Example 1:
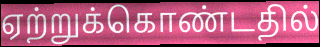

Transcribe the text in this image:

ஏற்றுக்கொண்டதில்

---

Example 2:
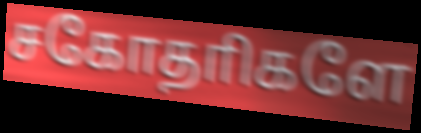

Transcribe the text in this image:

சகோதரிகளே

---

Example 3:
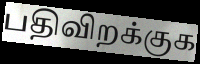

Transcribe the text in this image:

பதிவிறக்குக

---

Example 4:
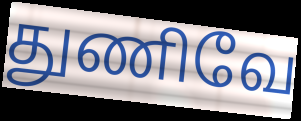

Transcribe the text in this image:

துணிவே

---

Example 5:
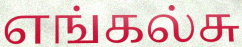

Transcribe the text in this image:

எங்கல்சு